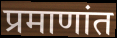
प्रमाणांत